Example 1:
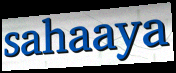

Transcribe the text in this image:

sahaaya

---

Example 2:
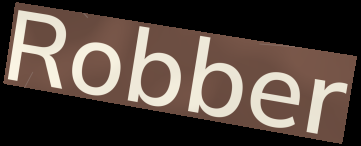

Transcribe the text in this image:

Robber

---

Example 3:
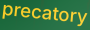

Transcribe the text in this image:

precatory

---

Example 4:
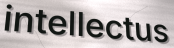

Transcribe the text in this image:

intellectus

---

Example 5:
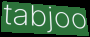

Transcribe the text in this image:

tabjoo